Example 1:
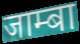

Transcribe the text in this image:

जाम्बा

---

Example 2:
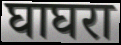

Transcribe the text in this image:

घाघरा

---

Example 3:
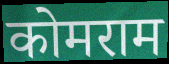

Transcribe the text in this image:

कोमराम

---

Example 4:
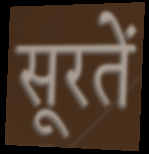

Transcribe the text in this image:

सूरतें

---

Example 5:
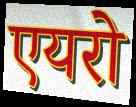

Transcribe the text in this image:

एयरो